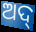
ଅଦ୍